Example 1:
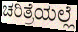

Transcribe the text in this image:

ಚರಿತ್ರೆಯಲ್ಲೆ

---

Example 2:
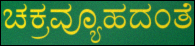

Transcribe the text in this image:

ಚಕ್ರವ್ಯೂಹದಂತೆ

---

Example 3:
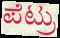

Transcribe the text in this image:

ಪೆಟ್ರು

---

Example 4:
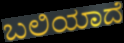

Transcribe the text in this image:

ಬಲಿಯಾದೆ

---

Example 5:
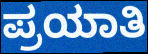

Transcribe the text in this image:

ಪ್ರಯಾತಿ